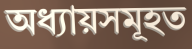
অধ্যায়সমূহত